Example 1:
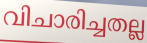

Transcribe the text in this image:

വിചാരിച്ചതല്ല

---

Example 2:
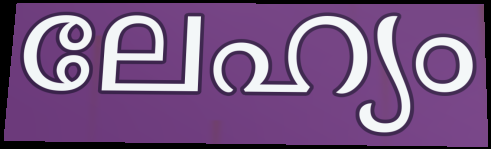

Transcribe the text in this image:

ലേഹ്യം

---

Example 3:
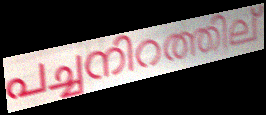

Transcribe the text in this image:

പച്ചനിറത്തില്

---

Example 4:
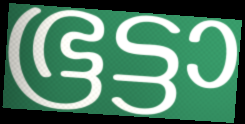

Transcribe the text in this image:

ഭൂട്ടാ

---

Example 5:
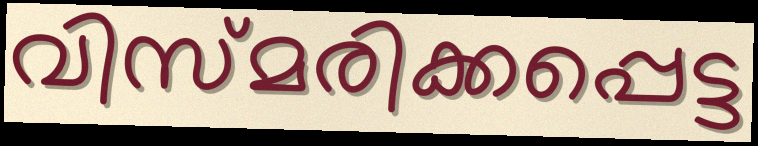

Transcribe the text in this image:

വിസ്മരിക്കപ്പെട്ട